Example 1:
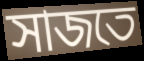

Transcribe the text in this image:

সাজতে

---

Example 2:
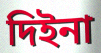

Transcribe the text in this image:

দিইনা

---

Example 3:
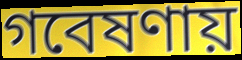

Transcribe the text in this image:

গবেষণায়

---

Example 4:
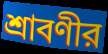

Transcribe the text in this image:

শ্রাবণীর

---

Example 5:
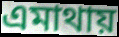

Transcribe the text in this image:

এমাথায়